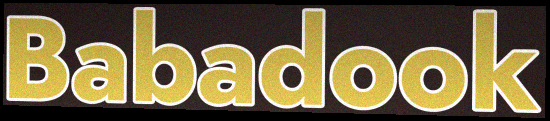
Babadook